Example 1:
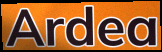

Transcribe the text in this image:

Ardea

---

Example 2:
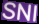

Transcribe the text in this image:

SNl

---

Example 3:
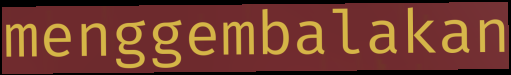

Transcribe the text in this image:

menggembalakan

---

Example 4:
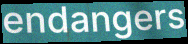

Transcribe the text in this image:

endangers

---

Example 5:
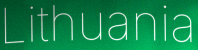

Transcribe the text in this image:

Lithuania